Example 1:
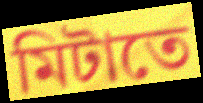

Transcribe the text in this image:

মিটাতে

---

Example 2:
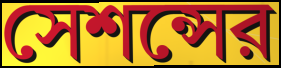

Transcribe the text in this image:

সেশন্সের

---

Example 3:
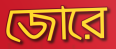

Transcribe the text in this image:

জোরে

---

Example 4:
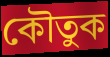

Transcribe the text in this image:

কৌতুক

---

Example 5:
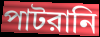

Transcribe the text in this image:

পাটরানি